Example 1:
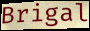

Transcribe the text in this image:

Brigal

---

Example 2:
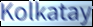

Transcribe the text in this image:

Kolkatay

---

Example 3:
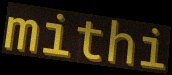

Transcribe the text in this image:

mithi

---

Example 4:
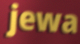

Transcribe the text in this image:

jewa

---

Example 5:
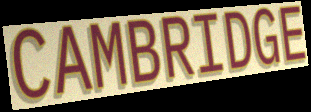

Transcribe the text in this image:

CAMBRIDGE